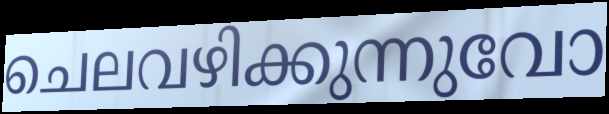
ചെലവഴിക്കുന്നുവോ